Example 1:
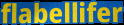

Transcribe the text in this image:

flabellifer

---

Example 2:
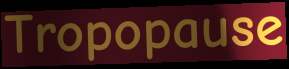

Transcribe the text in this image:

Tropopause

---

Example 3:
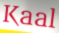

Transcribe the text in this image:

Kaal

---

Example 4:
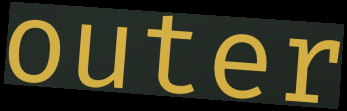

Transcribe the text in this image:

outer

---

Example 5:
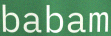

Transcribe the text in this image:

babam